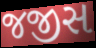
જજીસ